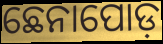
ଛେନାପୋଡ଼